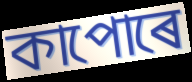
কাপোৰে